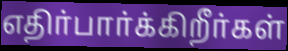
எதிர்பார்க்கிறீர்கள்